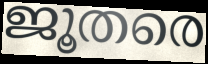
ജൂതരെ